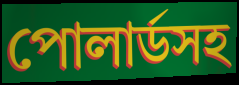
পোলার্ডসহ